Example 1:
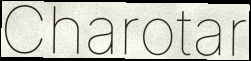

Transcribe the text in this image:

Charotar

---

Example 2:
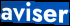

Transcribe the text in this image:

aviser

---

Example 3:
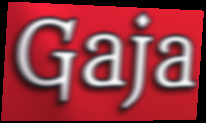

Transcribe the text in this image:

Gaja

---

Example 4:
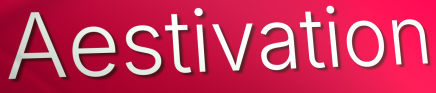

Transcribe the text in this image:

Aestivation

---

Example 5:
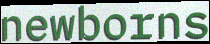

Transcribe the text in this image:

newborns